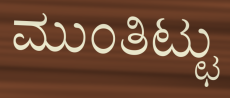
ಮುಂತಿಟ್ಟು